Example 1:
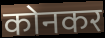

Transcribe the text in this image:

कोनकर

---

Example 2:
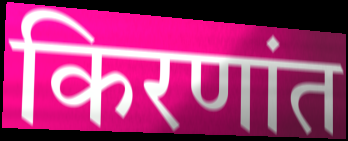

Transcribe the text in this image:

किरणांत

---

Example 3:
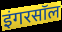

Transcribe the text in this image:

इंगरसॉल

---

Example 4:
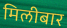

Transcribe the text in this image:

मिलीबार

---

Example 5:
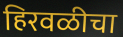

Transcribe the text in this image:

हिरवळीचा